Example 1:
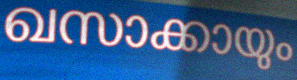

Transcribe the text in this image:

ഖസാക്കായും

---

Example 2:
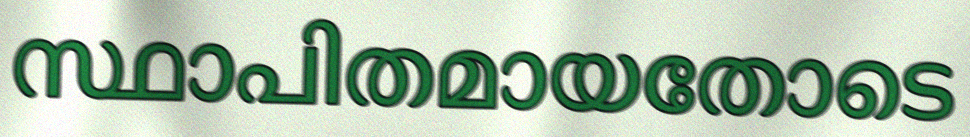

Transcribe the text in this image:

സ്ഥാപിതമായതോടെ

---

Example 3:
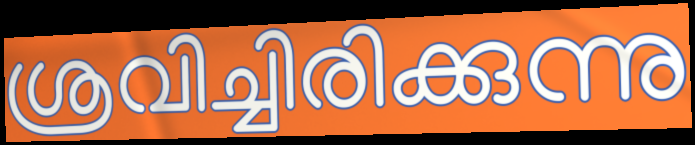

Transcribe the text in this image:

ശ്രവിച്ചിരിക്കുന്നു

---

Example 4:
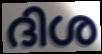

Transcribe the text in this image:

ദിശ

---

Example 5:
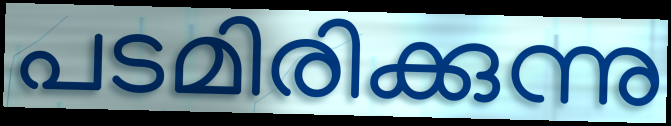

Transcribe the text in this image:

പടമിരിക്കുന്നു